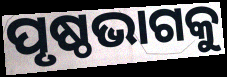
ପୃଷ୍ଠଭାଗକୁ